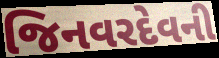
જિનવરદેવની